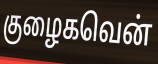
குழைகவென்